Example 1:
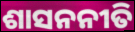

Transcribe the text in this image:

ଶାସନନୀତି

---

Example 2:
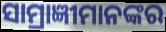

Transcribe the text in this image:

ସାମ୍ରାଜ୍ଞୀମାନଙ୍କର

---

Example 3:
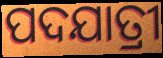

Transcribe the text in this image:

ପଦଯାତ୍ରୀ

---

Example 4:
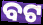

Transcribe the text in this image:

ବଟ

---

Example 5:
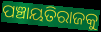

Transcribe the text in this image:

ପଞ୍ଚାୟତିରାଜକୁ